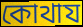
কোথায